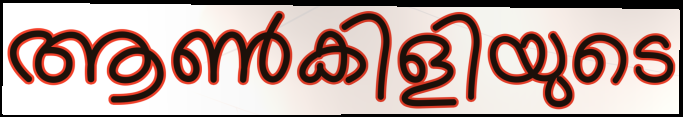
ആൺകിളിയുടെ